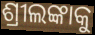
ଶ୍ରୀଲଙ୍କାକୁ